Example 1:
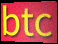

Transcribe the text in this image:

btc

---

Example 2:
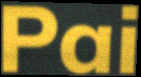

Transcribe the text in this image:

Pai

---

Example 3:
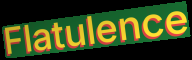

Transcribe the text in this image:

Flatulence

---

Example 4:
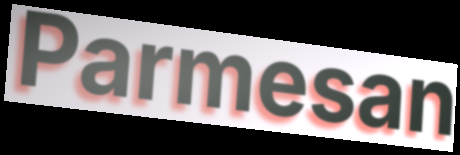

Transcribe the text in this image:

Parmesan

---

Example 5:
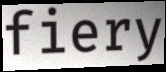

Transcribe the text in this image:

fiery